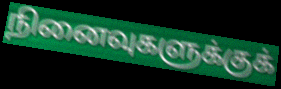
நினைவுகளுக்குக்